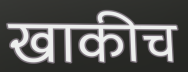
खाकीच